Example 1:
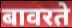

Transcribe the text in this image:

बावरते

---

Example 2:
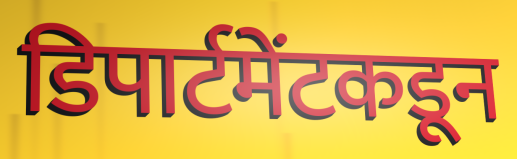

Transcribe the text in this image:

डिपार्टमेंटकडून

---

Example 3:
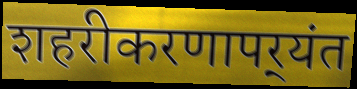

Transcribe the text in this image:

शहरीकरणापर्यंत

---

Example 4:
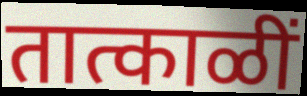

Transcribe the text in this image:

तात्काळीं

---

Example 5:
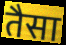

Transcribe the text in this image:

तैसा